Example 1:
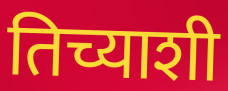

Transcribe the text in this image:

तिच्याशी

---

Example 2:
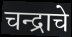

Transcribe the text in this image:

चन्द्राचे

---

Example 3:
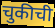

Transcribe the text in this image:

चुकीची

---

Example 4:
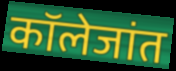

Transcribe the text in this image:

कॉलेजांत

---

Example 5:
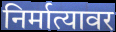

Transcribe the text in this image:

निर्मात्यावर